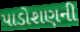
પાડોશણની